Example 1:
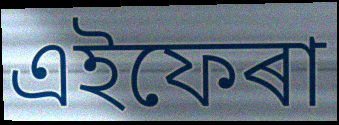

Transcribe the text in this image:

এইফেৰা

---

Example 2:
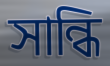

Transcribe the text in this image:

সান্ধি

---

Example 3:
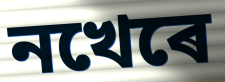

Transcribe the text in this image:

নখেৰে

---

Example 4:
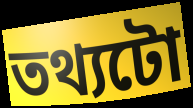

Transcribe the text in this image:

তথ্যটো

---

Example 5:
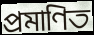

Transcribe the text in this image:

প্ৰমাণিত